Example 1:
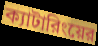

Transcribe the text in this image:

ক্যাটারিংয়ের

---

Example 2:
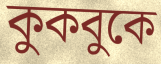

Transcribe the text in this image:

কুকবুকে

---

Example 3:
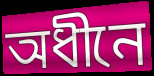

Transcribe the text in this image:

অধীনে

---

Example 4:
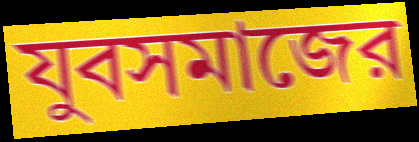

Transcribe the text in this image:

যুবসমাজের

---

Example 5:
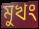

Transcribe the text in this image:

মুখং